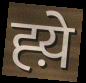
ह्य़े